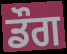
ਡੌਗ